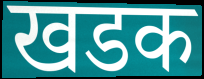
खडक